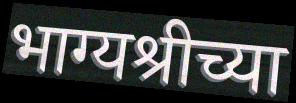
भाग्यश्रीच्या